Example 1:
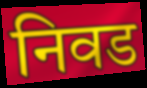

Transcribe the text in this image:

निवड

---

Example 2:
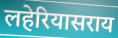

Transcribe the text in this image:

लहेरियासराय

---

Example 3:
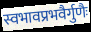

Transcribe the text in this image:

स्वभावप्रभवैर्गुणैः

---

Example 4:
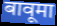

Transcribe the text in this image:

बावूमा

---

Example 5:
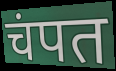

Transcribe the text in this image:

चंपत